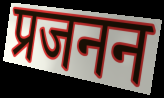
प्रजनन